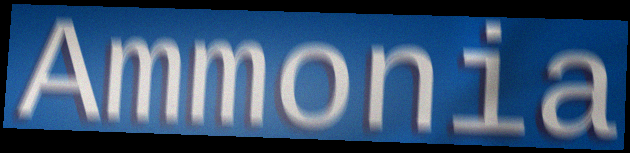
Ammonia